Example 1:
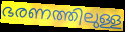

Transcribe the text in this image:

ഭരണത്തിലുള്ള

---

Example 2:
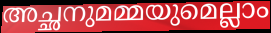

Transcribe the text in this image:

അച്ഛനുമമ്മയുമെല്ലാം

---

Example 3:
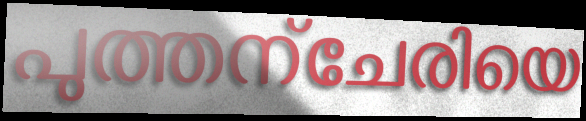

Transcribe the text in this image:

പുത്തന്ചേരിയെ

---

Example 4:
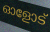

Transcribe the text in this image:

ഓളോട്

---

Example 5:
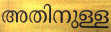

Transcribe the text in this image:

അതിനുള്ള